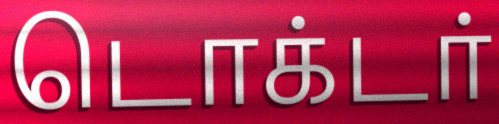
டொக்டர்